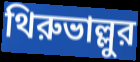
থিরুভাল্লুর